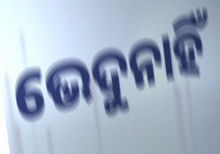
ଭେଦୁନାହିଁ